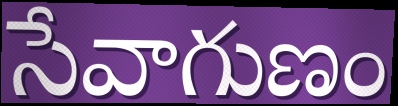
సేవాగుణం